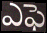
ఎఫె